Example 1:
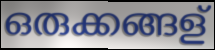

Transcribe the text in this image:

ഒരുക്കങ്ങള്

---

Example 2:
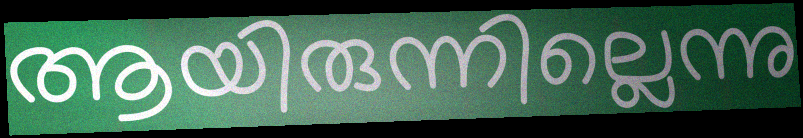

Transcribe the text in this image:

ആയിരുന്നില്ലെന്നു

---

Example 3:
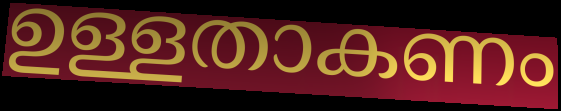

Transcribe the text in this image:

ഉള്ളതാകണം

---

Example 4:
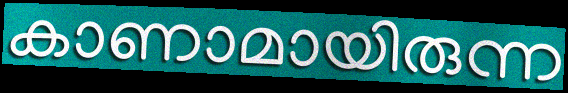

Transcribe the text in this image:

കാണാമായിരുന്ന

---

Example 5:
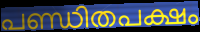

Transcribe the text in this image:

പണ്ഡിതപക്ഷം